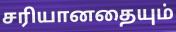
சரியானதையும்